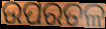
ଉପରତଳ